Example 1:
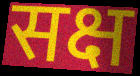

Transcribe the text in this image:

सक्ष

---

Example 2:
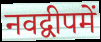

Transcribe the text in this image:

नवद्वीपमें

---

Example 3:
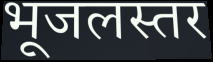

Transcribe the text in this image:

भूजलस्तर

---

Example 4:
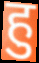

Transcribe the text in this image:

हु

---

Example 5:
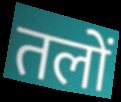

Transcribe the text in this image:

तलों